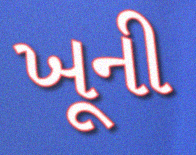
ખૂની